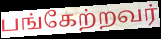
பங்கேற்றவர்